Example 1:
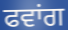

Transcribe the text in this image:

ਫਵਾਂਗ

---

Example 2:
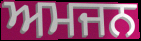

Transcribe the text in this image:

ਅਮਜਨ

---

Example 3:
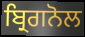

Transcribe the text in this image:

ਬ੍ਰਿਗਨੋਲ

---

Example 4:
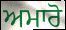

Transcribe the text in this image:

ਅਮਾਰੋ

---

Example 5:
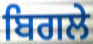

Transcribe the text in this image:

ਬਿਗਲੇ